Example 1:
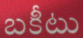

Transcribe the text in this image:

బకీటు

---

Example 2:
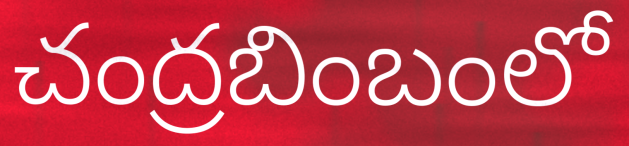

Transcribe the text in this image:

చంద్రబింబంలో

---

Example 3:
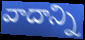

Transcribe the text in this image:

వాదాన్ని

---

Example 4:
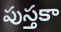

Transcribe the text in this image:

పుస్తకా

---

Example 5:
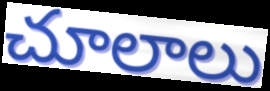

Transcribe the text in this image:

చూలాలు